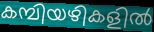
കമ്പിയഴികളിൽ